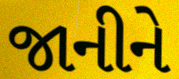
જાનીને